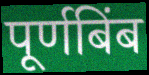
पूर्णबिंब